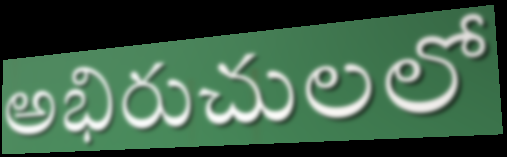
అభిరుచులలో